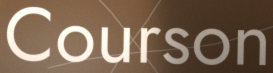
Courson